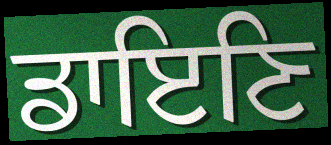
ਡਾਇਣਿ